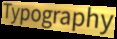
Typography